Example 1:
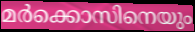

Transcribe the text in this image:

മർക്കൊസിനെയും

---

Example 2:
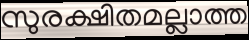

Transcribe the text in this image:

സുരക്ഷിതമല്ലാത്ത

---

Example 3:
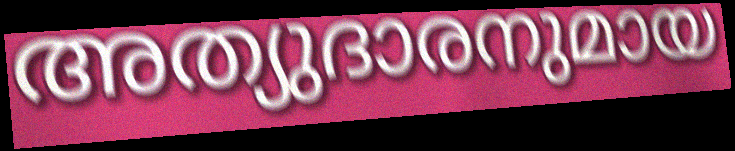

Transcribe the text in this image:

അത്യുദാരനുമായ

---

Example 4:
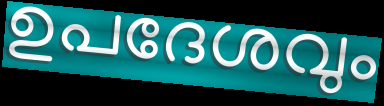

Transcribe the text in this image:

ഉപദേശവും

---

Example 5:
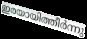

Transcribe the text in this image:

ഇരയായിത്തീർന്നു